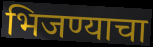
भिजण्याचा